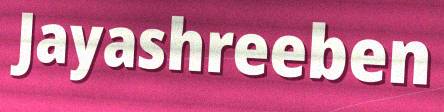
Jayashreeben